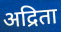
अद्रिता